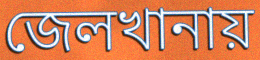
জেলখানায়